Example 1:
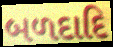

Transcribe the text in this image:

બળદાદિ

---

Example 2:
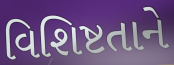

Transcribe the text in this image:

વિશિષ્ટતાને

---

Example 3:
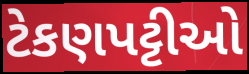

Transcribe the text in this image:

ટેકણપટ્ટીઓ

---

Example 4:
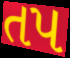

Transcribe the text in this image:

તપ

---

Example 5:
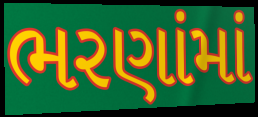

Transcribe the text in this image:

ભરણાંમાં